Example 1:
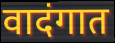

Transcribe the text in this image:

वादंगात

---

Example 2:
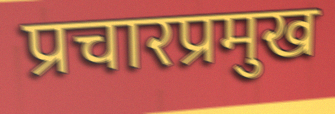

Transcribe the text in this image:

प्रचारप्रमुख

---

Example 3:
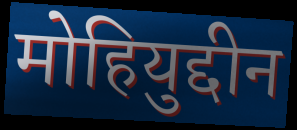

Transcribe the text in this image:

मोहियुद्दीन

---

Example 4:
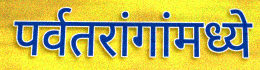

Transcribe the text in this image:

पर्वतरांगांमध्ये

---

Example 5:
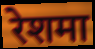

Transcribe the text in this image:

रेशमा